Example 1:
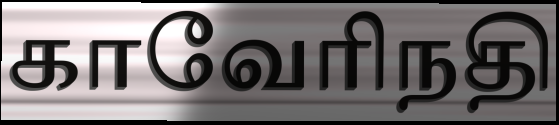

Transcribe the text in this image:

காவேரிநதி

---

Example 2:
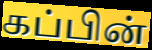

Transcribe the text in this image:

கப்பின்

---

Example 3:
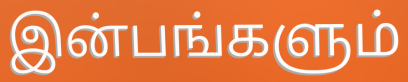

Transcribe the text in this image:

இன்பங்களும்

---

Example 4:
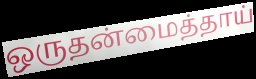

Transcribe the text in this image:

ஒருதன்மைத்தாய்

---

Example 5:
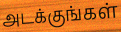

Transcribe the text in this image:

அடக்குங்கள்